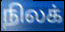
நிலக்